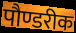
पौण्डरीक